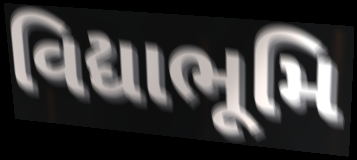
વિદ્યાભૂમિ